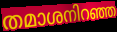
തമാശനിറഞ്ഞ